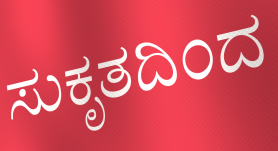
ಸುಕೃತದಿಂದ